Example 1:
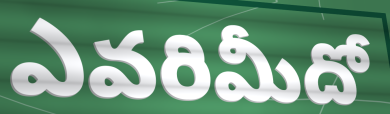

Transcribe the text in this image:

ఎవరిమీదో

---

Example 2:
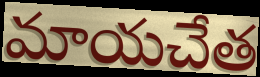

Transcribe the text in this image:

మాయచేత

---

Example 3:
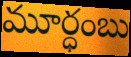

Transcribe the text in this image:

మూర్ధంబు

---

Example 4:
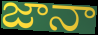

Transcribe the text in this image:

జానా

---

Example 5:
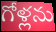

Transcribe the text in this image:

గోళ్లను